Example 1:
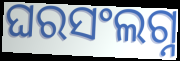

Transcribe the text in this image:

ଘରସଂଲଗ୍ନ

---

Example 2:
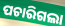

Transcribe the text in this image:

ପଚାରିଗଲା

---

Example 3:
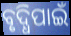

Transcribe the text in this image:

ବୃଦ୍ଧିପାଇଁ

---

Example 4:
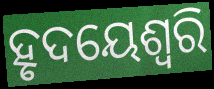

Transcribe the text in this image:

ହୃଦୟେଶ୍ଵରି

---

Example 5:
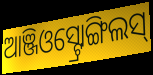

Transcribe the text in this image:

ଆଞ୍ଜିଓସ୍ଟ୍ରୋଙ୍ଗିଲସ୍